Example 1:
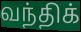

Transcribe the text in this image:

வந்திக்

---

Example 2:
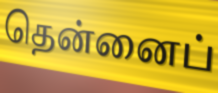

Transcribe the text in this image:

தென்னைப்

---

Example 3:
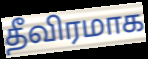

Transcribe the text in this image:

தீவிரமாக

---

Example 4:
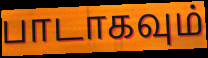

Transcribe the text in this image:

பாடாகவும்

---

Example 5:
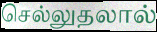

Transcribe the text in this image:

செல்லுதலால்